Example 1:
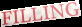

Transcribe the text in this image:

FILLING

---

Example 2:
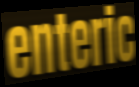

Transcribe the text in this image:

enteric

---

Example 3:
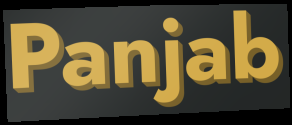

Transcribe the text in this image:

Panjab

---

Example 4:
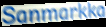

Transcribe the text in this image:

Sanmarkka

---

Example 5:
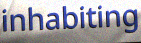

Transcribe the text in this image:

inhabiting